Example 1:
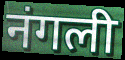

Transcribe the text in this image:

नंगली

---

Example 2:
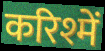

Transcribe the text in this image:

करिश्में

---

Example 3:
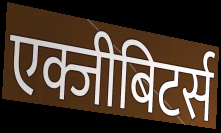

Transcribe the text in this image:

एक्जीबिटर्स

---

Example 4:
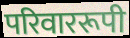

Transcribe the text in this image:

परिवाररूपी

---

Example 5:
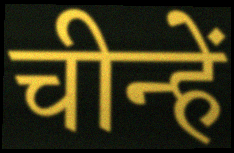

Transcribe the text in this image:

चीन्हें